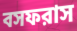
বসফরাস